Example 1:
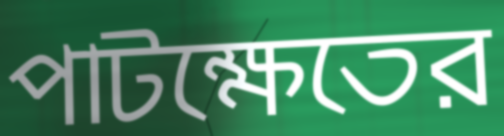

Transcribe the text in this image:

পাটক্ষেতের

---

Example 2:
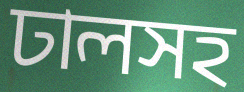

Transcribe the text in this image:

ঢালসহ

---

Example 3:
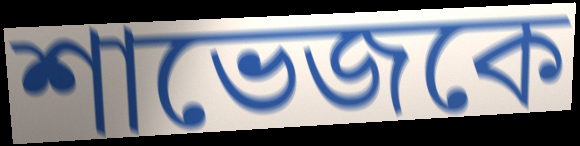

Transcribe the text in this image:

শাভেজকে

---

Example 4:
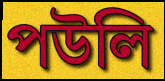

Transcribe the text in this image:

পউলি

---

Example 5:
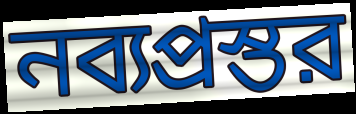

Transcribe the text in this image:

নব্যপ্রস্তর